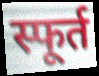
स्फूर्त